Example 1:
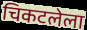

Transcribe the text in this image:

चिकटलेला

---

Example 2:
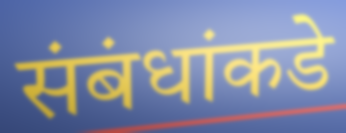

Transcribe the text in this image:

संबंधांकडे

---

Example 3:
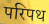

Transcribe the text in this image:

परिपथ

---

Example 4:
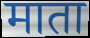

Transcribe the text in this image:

माता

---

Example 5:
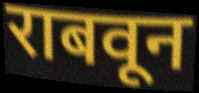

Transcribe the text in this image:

राबवून